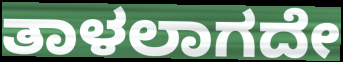
ತಾಳಲಾಗದೇ